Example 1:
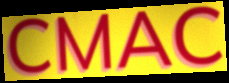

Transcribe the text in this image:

CMAC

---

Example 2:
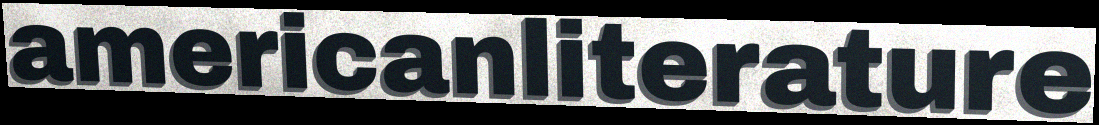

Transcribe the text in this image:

americanliterature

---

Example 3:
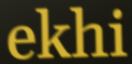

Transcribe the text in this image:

ekhi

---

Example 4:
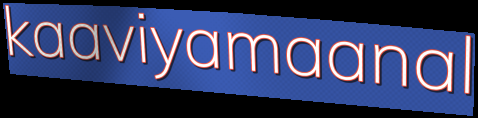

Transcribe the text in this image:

kaaviyamaanal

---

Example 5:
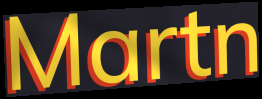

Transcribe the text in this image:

Martn